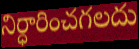
నిర్ధారించగలదు